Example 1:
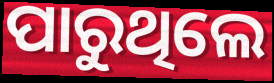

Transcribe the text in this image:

ପାରୁଥିଲେ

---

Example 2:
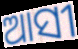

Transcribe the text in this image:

ଆସୀ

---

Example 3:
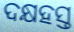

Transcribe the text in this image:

ଦକ୍ଷହସ୍ତ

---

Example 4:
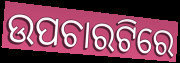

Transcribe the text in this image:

ଉପଚାରଟିରେ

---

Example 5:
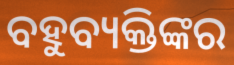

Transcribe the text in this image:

ବହୁବ୍ୟକ୍ତିଙ୍କର